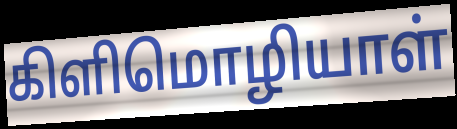
கிளிமொழியாள்